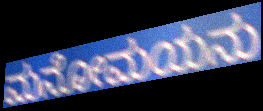
ಮನೋಮಯನು